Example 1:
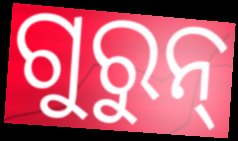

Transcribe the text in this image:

ଗୁରୁନ୍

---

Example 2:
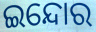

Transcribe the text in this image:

ଇନ୍ଦୋର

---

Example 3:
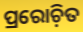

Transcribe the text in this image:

ପ୍ରରୋଚ଼ିତ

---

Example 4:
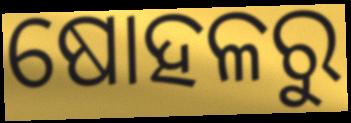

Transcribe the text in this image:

ଷୋହଳରୁ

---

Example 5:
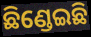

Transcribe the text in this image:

ଛିଣ୍ଡେଇଛି